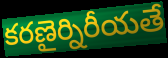
కరణైర్నిరీయతే